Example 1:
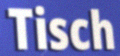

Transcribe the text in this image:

Tisch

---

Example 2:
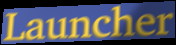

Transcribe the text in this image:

Launcher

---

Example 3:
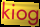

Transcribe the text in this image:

kiog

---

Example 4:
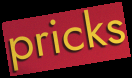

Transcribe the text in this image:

pricks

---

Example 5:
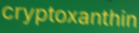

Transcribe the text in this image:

cryptoxanthin